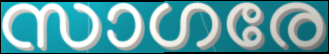
സാഗരേ